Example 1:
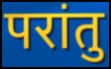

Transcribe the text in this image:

परांतु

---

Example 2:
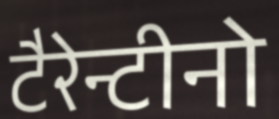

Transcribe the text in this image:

टैरेन्टीनो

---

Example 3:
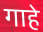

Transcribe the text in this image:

गाहे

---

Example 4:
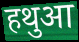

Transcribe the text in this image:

हथुआ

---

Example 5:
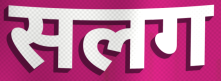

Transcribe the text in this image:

सलग